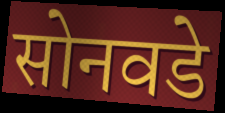
सोनवडे